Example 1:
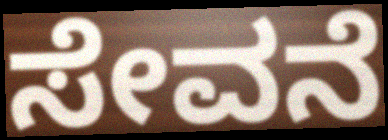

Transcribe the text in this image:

ಸೇವನೆ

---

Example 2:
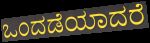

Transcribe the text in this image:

ಒಂದಡೆಯಾದರೆ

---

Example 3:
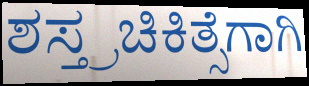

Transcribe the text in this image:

ಶಸ್ತ್ರಚಿಕಿತ್ಸೆಗಾಗಿ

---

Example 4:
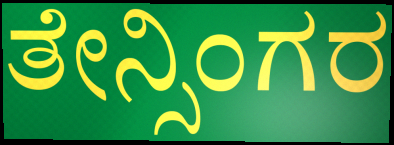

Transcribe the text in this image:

ತೇನ್ಸಿಂಗರ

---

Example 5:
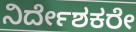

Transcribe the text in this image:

ನಿರ್ದೇಶಕರೇ